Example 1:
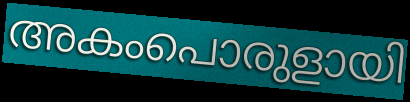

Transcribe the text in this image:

അകംപൊരുളായി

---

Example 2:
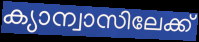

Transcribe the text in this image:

ക്യാന്വാസിലേക്ക്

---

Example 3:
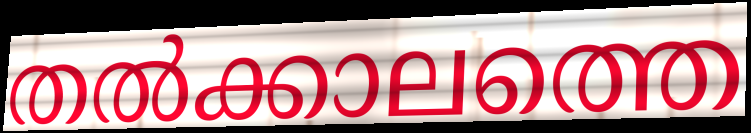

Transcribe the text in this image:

തൽക്കാലത്തെ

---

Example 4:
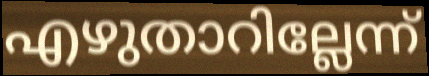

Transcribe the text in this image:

എഴുതാറില്ലേന്ന്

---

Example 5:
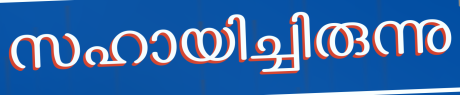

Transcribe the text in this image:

സഹായിച്ചിരുന്നു